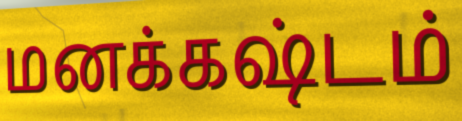
மனக்கஷ்டம்